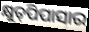
କ୍ଷୁତ୍‌ପିପାସାର